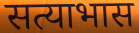
सत्याभास